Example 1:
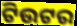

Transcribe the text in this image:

ଟିଉଟର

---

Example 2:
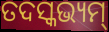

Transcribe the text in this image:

ତଦସ୍କଭ୍ୟମ୍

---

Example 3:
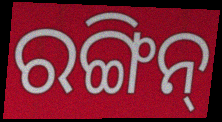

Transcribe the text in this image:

ରଙ୍ଗିନ୍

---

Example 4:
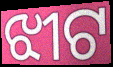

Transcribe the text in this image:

ଝୀଟ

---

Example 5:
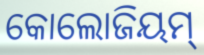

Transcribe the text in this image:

କୋଲୋଜିୟମ୍